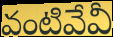
వంటివేవీ